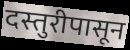
दस्तुरीपासून